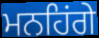
ਮਨਹਿਂਗੇ